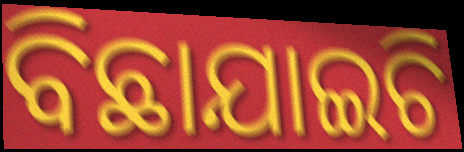
ବିଛାଯାଇଚି